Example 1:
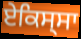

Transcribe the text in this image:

ਏਕਿਸ੍ਸਾ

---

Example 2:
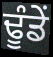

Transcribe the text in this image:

ਢੂੰਡੇਂ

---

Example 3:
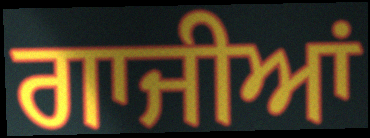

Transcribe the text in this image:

ਗਾਜੀਆਂ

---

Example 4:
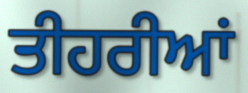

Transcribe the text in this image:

ਤੀਹਰੀਆਂ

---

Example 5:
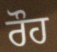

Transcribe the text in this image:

ਰੌਹ